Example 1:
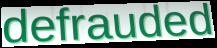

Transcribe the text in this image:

defrauded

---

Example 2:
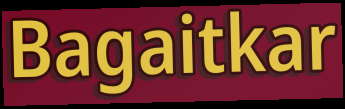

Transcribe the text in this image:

Bagaitkar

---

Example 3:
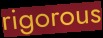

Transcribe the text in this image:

rigorous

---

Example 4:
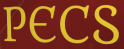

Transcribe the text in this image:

PECS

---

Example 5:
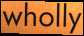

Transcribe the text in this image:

wholly